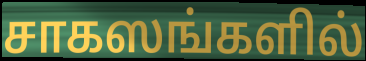
சாகஸங்களில்